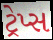
ટ્રેપ્સ